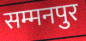
सम्मनपुर